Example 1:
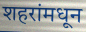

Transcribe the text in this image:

शहरांमधून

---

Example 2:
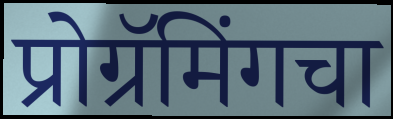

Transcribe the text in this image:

प्रोग्रॅमिंगचा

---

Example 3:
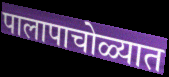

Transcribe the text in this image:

पालापाचोळ्यात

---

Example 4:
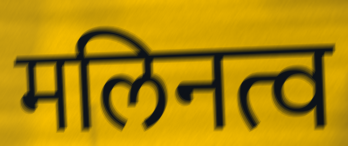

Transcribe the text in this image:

मलिनत्व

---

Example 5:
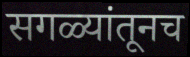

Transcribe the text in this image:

सगळ्यांतूनच